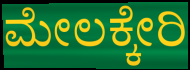
ಮೇಲಕ್ಕೇರಿ